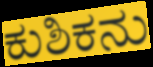
ಕುಶಿಕನು